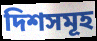
দিশসমূহ